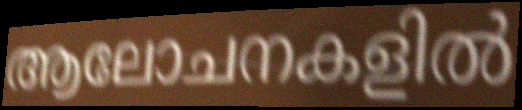
ആലോചനകളിൽ